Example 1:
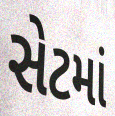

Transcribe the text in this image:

સેટમાં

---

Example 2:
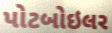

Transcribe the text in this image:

પોટબોઇલર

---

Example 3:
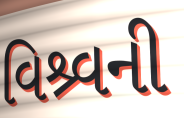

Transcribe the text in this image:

વિશ્ર્વની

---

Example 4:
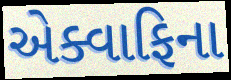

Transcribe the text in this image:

એક્વાફિના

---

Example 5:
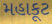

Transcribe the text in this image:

મહાકૂટ